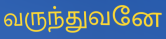
வருந்துவனே